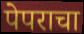
पेपराचा